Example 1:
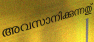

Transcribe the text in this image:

അവസാനിക്കുന്നതു്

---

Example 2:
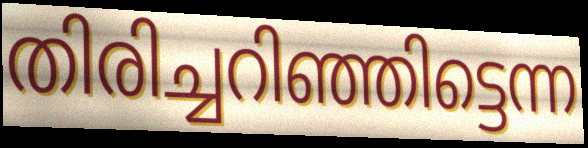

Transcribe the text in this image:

തിരിച്ചറിഞ്ഞിട്ടെന്ന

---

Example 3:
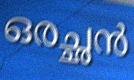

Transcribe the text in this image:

ഒരച്ഛൻ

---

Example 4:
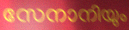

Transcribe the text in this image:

സേനാനിയും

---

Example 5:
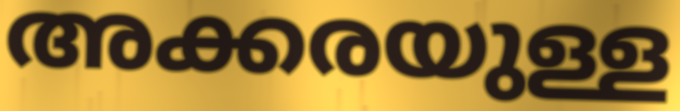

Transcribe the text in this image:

അക്കരയുള്ള